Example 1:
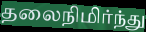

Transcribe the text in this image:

தலைநிமிர்ந்து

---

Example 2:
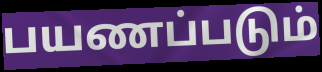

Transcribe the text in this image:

பயணப்படும்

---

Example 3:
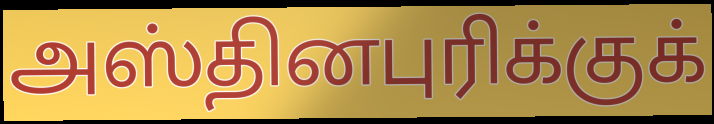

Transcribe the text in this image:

அஸ்தினபுரிக்குக்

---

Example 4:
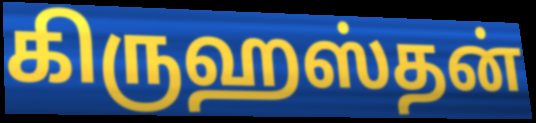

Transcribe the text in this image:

கிருஹஸ்தன்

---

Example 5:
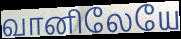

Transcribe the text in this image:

வானிலேயே